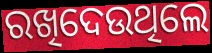
ରଖିଦେଉଥିଲେ